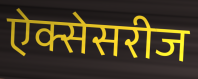
ऐक्सेसरीज